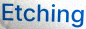
Etching